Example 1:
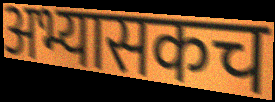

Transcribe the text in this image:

अभ्यासकच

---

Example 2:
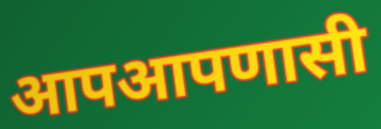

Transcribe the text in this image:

आपआपणासी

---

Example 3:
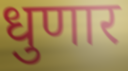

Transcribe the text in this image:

धुणार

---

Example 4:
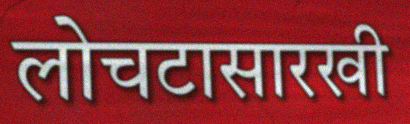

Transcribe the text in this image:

लोचटासारखी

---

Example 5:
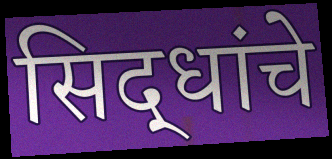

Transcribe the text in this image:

सिद्धांचे